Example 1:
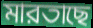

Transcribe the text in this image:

মারতাছে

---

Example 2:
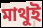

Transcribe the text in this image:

মাথুই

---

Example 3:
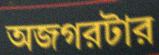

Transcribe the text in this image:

অজগরটার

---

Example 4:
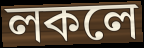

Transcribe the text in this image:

লকলে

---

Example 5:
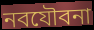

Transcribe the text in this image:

নবযৌবনা